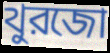
থুরজো